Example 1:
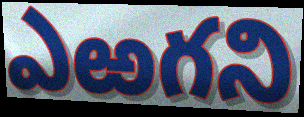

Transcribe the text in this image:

ఎఱగని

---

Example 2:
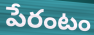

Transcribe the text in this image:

పేరంటం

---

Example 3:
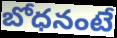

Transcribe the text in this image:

బోధనంటే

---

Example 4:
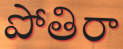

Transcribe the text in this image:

పోతిరా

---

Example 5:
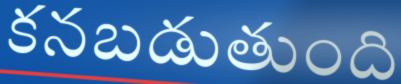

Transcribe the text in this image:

కనబడుతుంది